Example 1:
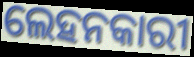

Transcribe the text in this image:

ଲେହନକାରୀ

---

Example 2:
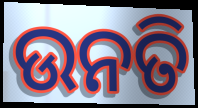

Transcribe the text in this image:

ଉନତି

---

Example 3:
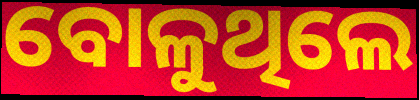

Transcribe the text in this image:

ବୋଳୁଥିଲେ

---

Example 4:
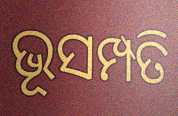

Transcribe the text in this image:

ଭୂସମ୍ପତି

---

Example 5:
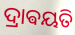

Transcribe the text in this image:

ଦ୍ରାଵୟତି